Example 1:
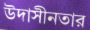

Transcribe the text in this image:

উদাসীনতার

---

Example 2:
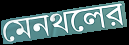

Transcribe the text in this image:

মেনথলের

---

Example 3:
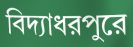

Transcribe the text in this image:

বিদ্যাধরপুরে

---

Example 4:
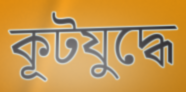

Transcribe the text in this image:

কূটযুদ্ধে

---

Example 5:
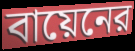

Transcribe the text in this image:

বায়েনের